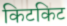
किटकिट